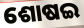
ଶୋଷଇ